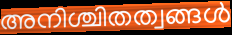
അനിശ്ചിതത്വങ്ങൾ